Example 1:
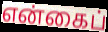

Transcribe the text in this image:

என்கைப்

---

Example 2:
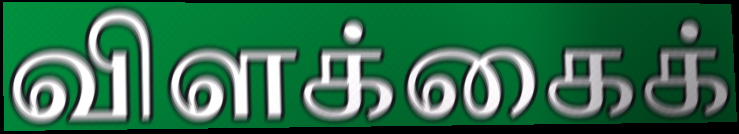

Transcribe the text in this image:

விளக்கைக்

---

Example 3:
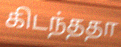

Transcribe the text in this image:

கிடந்ததா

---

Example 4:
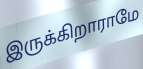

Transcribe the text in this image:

இருக்கிறாராமே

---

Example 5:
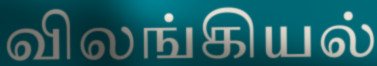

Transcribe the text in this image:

விலங்கியல்